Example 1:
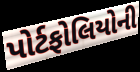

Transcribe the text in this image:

પોર્ટફોલિયોની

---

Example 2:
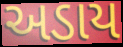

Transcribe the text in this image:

અડાય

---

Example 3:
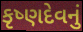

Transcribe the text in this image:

કૃષ્ણદેવનું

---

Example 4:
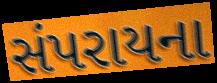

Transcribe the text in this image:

સંપરાયના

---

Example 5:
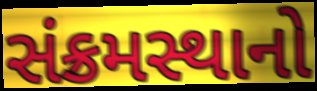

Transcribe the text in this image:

સંક્રમસ્થાનો